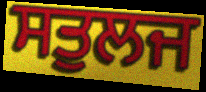
ਸਤੁਲਜ